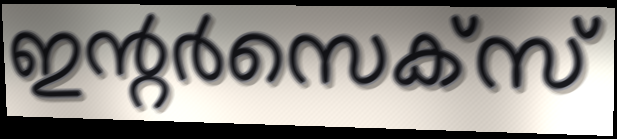
ഇന്റർസെക്സ്